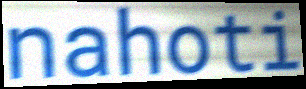
nahoti